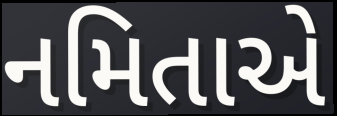
નમિતાએ